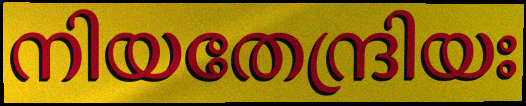
നിയതേന്ദ്രിയഃ